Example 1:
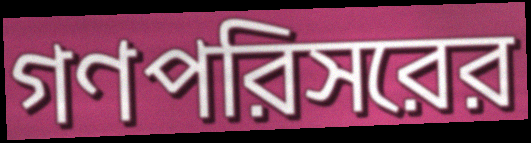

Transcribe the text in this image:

গণপরিসরের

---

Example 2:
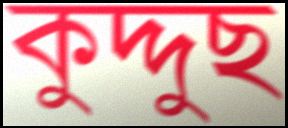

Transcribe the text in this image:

কুদ্দুছ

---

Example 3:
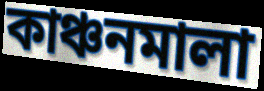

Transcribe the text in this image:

কাঞ্চনমালা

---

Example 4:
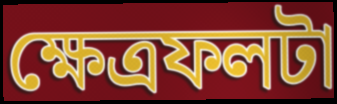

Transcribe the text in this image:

ক্ষেত্রফলটা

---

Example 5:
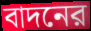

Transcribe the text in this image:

বাদনের